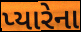
પ્યારેના